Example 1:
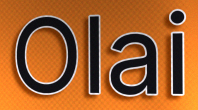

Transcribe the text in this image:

Olai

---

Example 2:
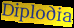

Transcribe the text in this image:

Diplodia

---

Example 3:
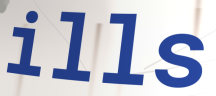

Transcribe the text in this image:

ills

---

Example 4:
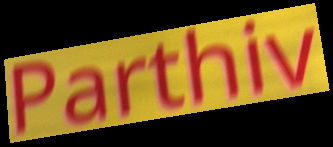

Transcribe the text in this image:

Parthiv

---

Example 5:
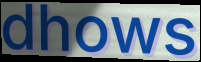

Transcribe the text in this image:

dhows